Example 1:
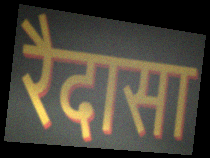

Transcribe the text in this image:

रैदासा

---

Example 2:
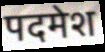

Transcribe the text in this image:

पदमेश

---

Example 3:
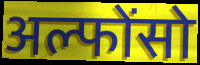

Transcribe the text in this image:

अल्फोंसो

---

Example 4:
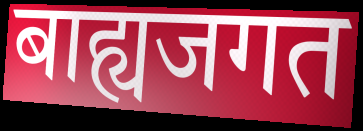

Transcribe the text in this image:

बाह्यजगत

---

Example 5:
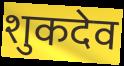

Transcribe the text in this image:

शुकदेव